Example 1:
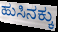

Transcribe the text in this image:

ಹುಸಿನಕ್ಕು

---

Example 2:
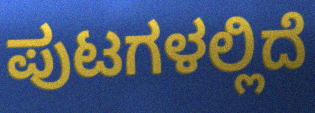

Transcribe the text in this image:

ಪುಟಗಳಲ್ಲಿದೆ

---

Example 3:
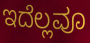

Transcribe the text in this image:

ಇದೆಲ್ಲವೂ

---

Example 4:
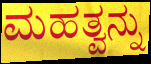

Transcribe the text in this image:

ಮಹತ್ವನ್ನು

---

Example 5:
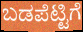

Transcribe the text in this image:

ಬಡಪೆಟ್ಟಿಗೆ